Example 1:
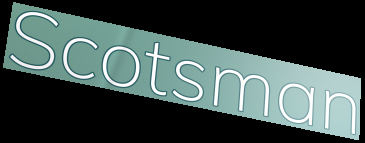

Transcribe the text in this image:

Scotsman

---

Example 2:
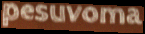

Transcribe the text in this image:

pesuvoma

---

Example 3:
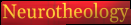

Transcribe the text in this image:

Neurotheology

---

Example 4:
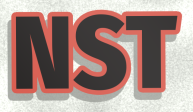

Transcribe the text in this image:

NST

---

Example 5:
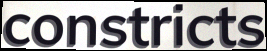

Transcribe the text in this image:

constricts